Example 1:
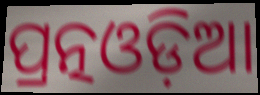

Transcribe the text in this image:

ପ୍ରତ୍ନଓଡ଼ିଆ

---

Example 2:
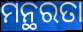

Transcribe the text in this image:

ମନ୍ଥରତା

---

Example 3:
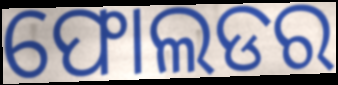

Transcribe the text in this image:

ଫୋଲଡର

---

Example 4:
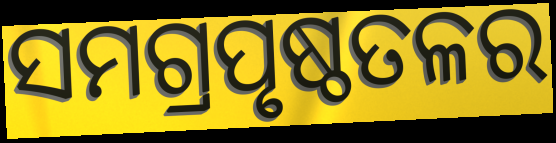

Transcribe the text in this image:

ସମଗ୍ରପୃଷ୍ଠତଳର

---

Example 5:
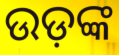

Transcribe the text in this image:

ଉଡ଼ଙ୍କ